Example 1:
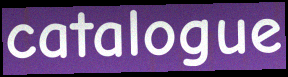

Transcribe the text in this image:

catalogue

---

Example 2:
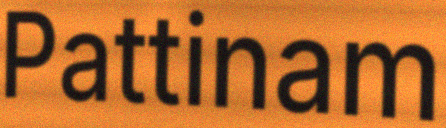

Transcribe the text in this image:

Pattinam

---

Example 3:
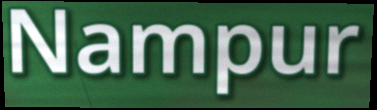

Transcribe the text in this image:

Nampur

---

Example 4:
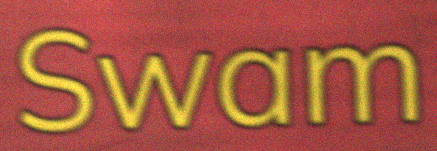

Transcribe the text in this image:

Swam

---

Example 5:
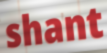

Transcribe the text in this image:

shant